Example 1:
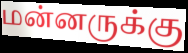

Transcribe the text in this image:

மன்னருக்கு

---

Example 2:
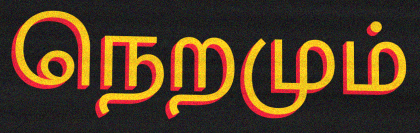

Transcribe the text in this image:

நெறமும்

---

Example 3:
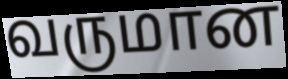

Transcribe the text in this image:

வருமான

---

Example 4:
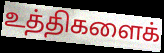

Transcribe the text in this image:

உத்திகளைக்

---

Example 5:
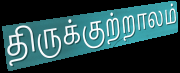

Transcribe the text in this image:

திருக்குற்றாலம்